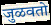
जुळवतो